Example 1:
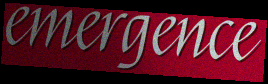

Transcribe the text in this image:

emergence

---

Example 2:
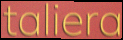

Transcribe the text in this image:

taliera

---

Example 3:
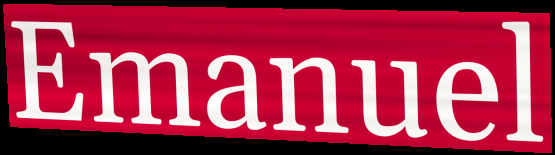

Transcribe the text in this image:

Emanuel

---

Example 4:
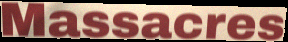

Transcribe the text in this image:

Massacres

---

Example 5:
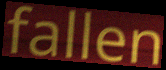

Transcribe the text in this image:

fallen